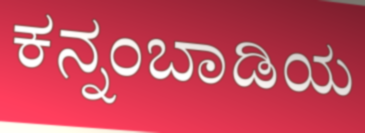
ಕನ್ನಂಬಾಡಿಯ